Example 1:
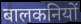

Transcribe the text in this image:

बालकनियों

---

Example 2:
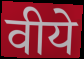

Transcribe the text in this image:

वीये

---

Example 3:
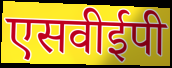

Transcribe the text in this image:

एसवीईपी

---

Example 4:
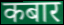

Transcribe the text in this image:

कबार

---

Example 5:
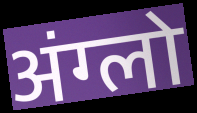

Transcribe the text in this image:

अंग्लो